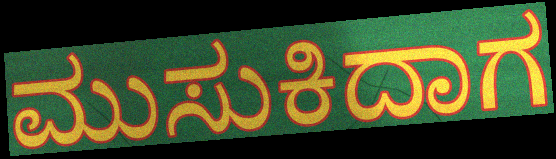
ಮುಸುಕಿದಾಗ